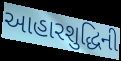
આહારશુદ્ધિની